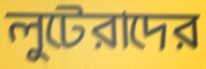
লুটেরাদের